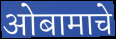
ओबामाचे